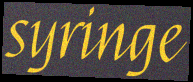
syringe